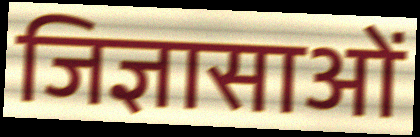
जिज्ञासाओं